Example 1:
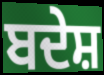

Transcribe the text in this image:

ਬਦੇਸ਼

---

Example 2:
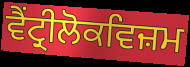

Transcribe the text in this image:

ਵੈਂਟ੍ਰੀਲੋਕਵਿਜ਼ਮ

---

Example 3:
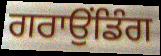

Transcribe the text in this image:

ਗਰਾਉਂਡਿੰਗ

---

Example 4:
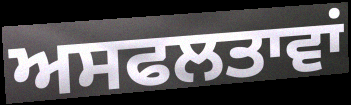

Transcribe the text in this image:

ਅਸਫਲਤਾਵਾਂ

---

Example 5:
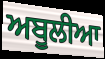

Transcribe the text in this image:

ਅਬੂਲੀਆ